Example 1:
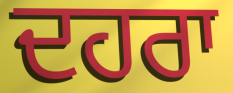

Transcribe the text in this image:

ਦਹਰਾ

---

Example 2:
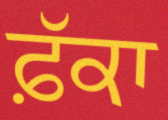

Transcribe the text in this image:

ਫ਼ੱਕਾ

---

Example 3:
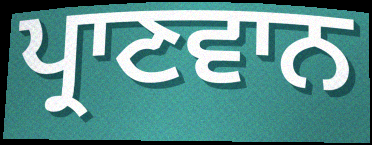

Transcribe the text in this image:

ਪ੍ਰਾਣਵਾਨ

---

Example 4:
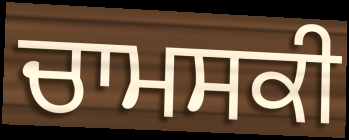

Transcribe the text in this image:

ਚਾਮਸਕੀ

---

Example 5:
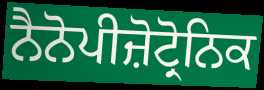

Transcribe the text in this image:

ਨੈਨੋਪੀਜ਼ੋਟ੍ਰੋਨਿਕ